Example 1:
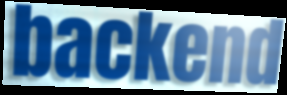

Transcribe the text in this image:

backend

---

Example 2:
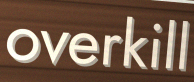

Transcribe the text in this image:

overkill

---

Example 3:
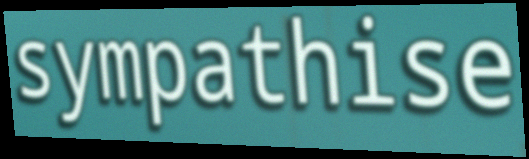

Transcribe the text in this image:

sympathise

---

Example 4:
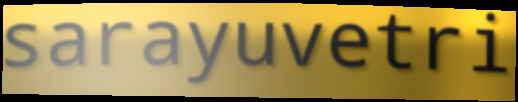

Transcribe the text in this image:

sarayuvetri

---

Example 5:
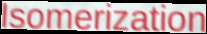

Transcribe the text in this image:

Isomerization